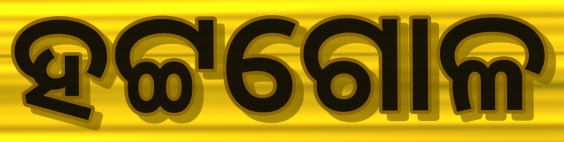
ହଟ୍ଟଗୋଳ